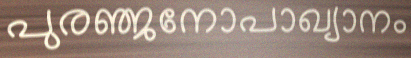
പുരഞ്ജനോപാഖ്യാനം